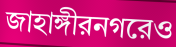
জাহাঙ্গীরনগরেও